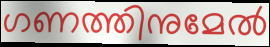
ഗണത്തിനുമേൽ